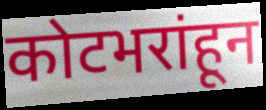
कोटभरांहून